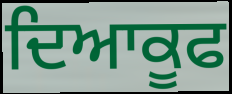
ਦਿਆਕੂਫ